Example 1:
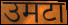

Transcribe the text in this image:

उमटा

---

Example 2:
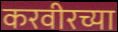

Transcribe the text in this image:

करवीरच्या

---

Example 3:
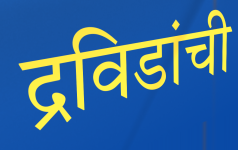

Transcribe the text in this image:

द्रविडांची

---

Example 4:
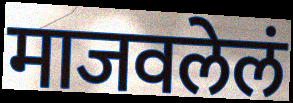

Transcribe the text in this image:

माजवलेलं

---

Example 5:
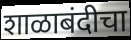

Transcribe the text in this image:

शाळाबंदीचा